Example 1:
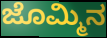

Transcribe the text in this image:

ಜೊಮ್ಮಿನ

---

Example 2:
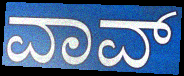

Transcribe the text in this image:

ವಾವ್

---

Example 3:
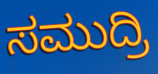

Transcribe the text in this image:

ಸಮುದ್ರಿ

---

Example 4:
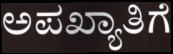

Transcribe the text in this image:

ಅಪಖ್ಯಾತಿಗೆ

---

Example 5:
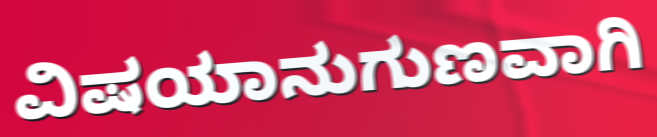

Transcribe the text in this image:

ವಿಷಯಾನುಗುಣವಾಗಿ